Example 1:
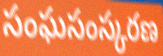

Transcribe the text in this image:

సంఘసంస్కరణ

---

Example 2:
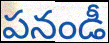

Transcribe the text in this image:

పనండీ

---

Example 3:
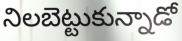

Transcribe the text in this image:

నిలబెట్టుకున్నాడో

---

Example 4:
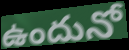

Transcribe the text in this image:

ఉందునో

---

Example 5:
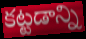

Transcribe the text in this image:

కట్టడాన్ని